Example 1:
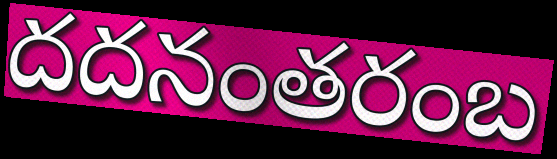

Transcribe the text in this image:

దదనంతరంబ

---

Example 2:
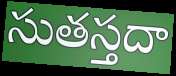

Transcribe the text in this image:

సుతస్తదా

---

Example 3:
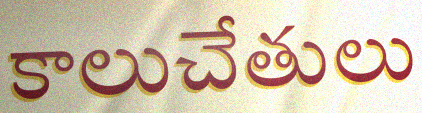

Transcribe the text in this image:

కాలుచేతులు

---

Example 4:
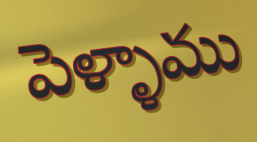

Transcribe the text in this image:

పెళ్ళాము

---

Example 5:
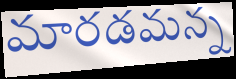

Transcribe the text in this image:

మారడమన్న